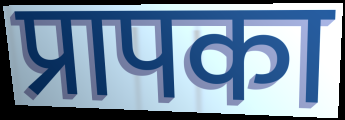
प्रापका